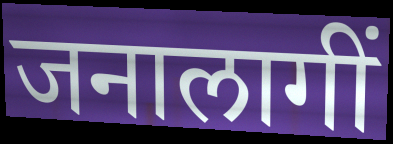
जनालागीं